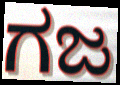
ಗಜ